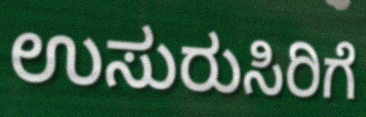
ಉಸುರುಸಿರಿಗೆ